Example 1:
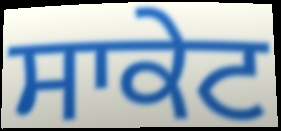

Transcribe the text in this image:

ਸਾਕੇਟ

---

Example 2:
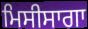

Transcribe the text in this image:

ਮਿਸੀਸਾਗਾ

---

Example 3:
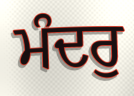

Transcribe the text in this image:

ਮੰਦਰੁ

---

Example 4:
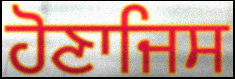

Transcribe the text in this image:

ਹੋਣਾਜਿਸ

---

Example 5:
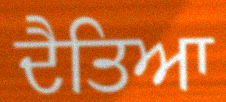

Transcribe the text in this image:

ਦੈਤਿਆ